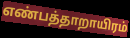
எண்பத்தாறாயிரம்